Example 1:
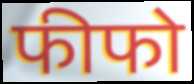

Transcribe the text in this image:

फीफो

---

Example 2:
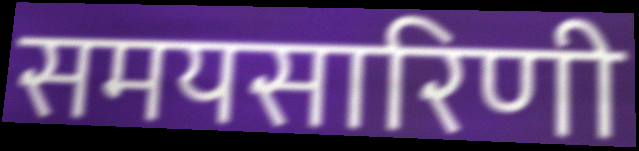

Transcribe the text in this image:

समयसारिणी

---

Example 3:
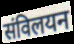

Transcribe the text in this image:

संविलयन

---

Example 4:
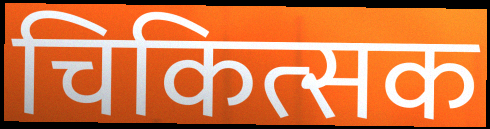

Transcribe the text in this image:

चिकित्‍सक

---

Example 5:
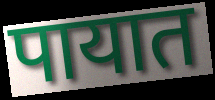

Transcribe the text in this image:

पायात